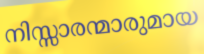
നിസ്സാരന്മാരുമായ